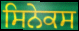
ਸਿਨੇਕਸ